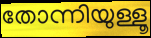
തോന്നിയുള്ളൂ